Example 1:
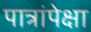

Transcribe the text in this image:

पात्रांपेक्षा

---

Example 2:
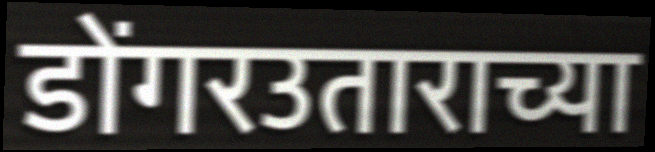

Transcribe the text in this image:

डोंगरउताराच्या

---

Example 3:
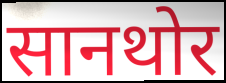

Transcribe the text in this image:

सानथोर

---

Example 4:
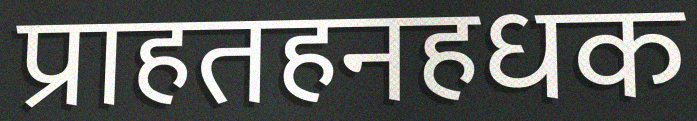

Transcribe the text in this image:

प्राहतहनहधक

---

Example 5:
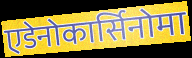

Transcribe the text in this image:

एडेनोकार्सिनोमा